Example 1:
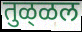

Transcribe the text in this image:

तुळ्‌ळल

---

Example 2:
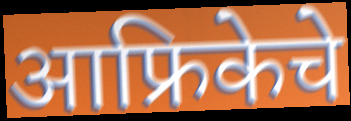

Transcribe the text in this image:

आफ्रिकेचे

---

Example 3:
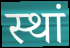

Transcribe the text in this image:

स्थां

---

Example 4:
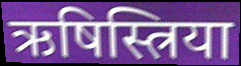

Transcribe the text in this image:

ऋषिस्त्रिया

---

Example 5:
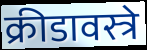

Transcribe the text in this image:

क्रीडावस्त्रे